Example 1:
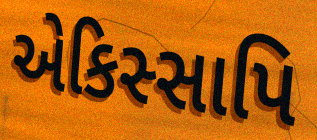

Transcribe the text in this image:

એકિસ્સાપિ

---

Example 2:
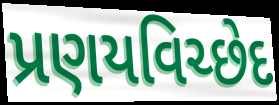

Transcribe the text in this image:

પ્રણયવિચ્છેદ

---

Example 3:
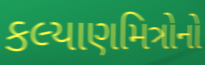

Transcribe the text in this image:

કલ્યાણમિત્રોનો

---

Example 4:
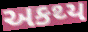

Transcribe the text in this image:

અકથ્ય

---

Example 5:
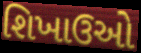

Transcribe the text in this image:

શિખાઉઓ